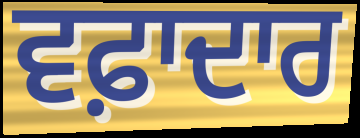
ਵਫ਼ਾਦਾਰ